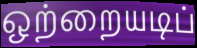
ஒற்றையடிப்